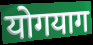
योगयाग